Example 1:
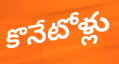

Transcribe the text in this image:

కొనేటోళ్లు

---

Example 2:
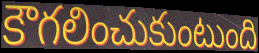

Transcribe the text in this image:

కౌగలించుకుంటుంది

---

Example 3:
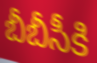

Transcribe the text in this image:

బీబీసీకి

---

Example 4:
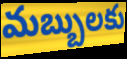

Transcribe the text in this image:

మబ్బులకు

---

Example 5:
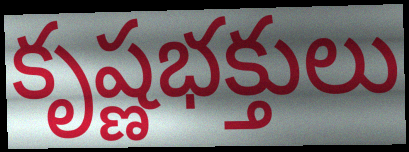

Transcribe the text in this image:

కృష్ణభక్తులు